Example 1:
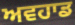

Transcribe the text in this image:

ਅਵਹਾਡ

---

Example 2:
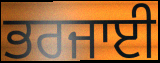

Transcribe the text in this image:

ਭਰਜਾਈ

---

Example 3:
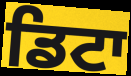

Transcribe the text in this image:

ਡਿਟਾ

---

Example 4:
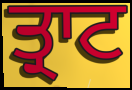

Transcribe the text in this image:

ਤ੍ਰਾਟ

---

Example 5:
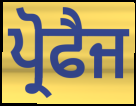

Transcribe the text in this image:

ਪ੍ਰੋਫੈਜ